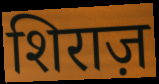
शिराज़